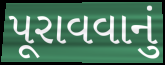
પૂરાવવાનું